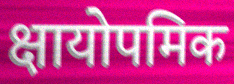
क्षायोपमिक